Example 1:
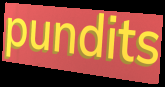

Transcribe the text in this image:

pundits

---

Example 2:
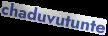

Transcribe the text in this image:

chaduvutunte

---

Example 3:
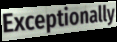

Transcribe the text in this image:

Exceptionally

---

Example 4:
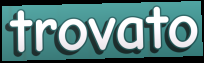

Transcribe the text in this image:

trovato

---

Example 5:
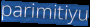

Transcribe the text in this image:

parimitiyu